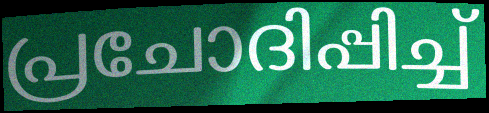
പ്രചോദിപ്പിച്ച്